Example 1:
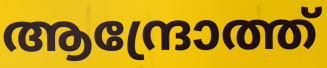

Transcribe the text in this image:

ആന്ദ്രോത്ത്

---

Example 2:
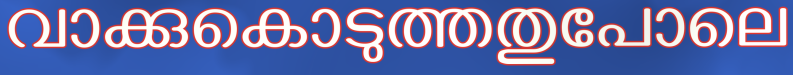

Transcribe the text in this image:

വാക്കുകൊടുത്തതുപോലെ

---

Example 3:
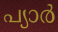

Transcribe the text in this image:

പ്യാർ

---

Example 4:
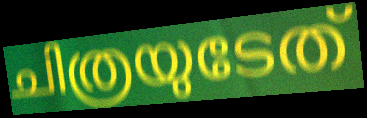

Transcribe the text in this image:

ചിത്രയുടേത്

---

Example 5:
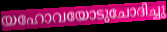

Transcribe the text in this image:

യഹോവയോടുചോദിച്ചു